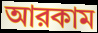
আরকাম